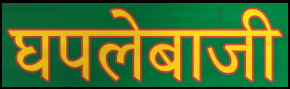
घपलेबाजी